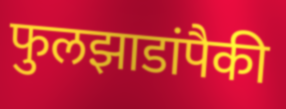
फुलझाडांपैकी